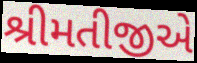
શ્રીમતીજીએ